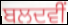
ਬਲਦਵੀਂ